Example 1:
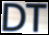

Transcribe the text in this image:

DT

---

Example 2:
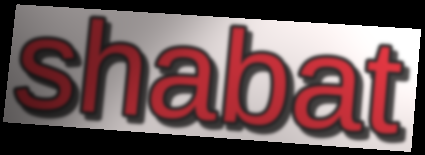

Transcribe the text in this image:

shabat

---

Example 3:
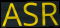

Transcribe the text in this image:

ASR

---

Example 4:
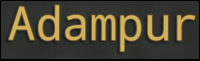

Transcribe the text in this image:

Adampur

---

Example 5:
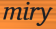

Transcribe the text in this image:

miry